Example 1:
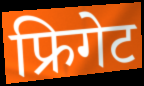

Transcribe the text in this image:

फ्रिगेट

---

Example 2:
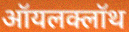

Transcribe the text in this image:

ऑयलक्लॉथ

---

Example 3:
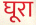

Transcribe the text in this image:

घूरा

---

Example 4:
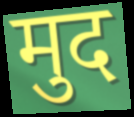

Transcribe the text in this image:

मुद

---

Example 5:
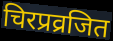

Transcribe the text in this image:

चिरप्रव्रजित